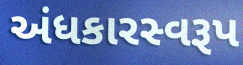
અંધકારસ્વરૂપ